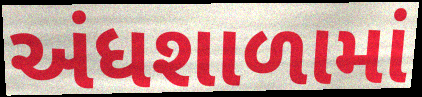
અંધશાળામાં